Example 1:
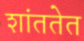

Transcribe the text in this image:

शांततेत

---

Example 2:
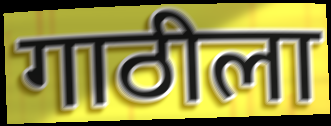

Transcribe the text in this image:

गाठीला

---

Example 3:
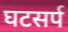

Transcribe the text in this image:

घटसर्प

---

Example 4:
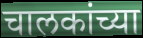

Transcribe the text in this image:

चालकांच्या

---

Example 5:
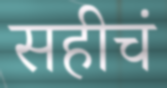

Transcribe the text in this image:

सहीचं